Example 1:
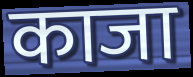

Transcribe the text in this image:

काजा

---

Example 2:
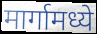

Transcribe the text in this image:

मार्गामध्ये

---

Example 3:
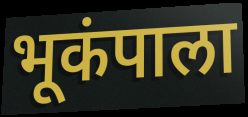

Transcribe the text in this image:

भूकंपाला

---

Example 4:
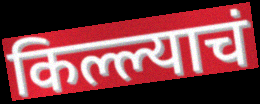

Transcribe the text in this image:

किल्ल्याचं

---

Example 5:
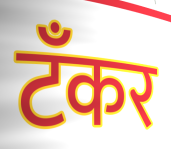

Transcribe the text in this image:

टँकर